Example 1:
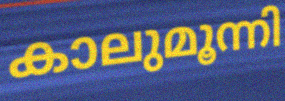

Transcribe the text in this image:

കാലുമൂന്നി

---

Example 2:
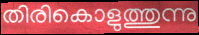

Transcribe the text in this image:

തിരികൊളുത്തുന്നു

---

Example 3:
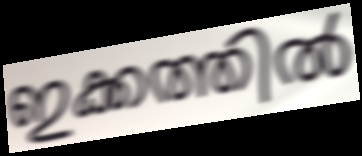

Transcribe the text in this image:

ഇക്കത്തിൽ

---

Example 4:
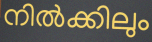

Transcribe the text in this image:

നിൽക്കിലും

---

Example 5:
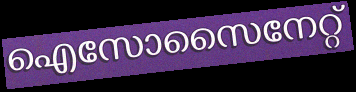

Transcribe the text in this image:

ഐസോസൈനേറ്റ്